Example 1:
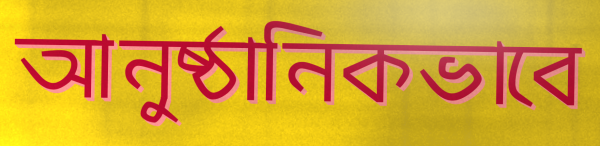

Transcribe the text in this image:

আনুষ্ঠানিকভাবে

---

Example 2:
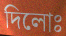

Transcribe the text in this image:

দিলোঃ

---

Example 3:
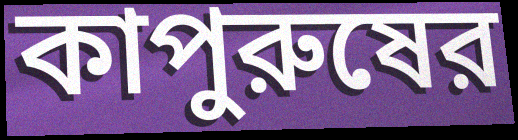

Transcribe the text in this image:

কাপুরুষের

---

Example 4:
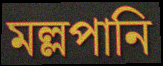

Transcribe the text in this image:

মল্লপানি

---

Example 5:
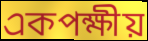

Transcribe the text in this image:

একপক্ষীয়